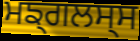
ਮਙ੍ਗਲਸ੍ਸ